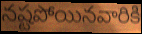
నష్టపోయినవారికి